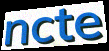
ncte